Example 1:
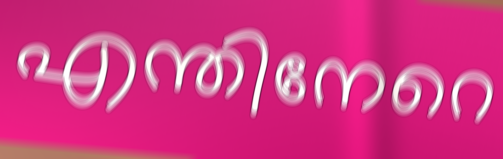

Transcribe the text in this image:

എന്തിനേറെ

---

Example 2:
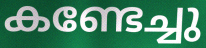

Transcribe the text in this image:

കണ്ടേച്ചു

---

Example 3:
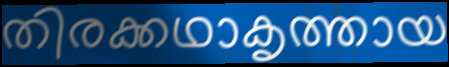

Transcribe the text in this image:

തിരക്കഥാകൃത്തായ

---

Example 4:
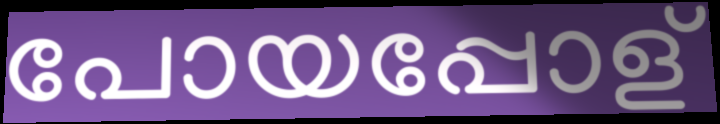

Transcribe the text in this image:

പോയപ്പോള്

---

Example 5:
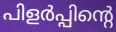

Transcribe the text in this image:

പിളർപ്പിന്റെ